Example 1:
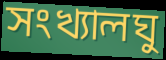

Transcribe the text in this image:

সংখ্যালঘু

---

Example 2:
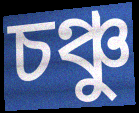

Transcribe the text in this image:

চঞ্চু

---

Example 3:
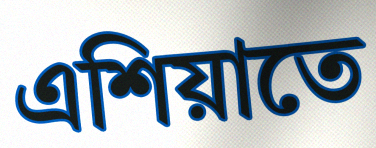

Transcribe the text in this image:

এশিয়াতে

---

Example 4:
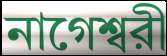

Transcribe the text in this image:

নাগেশ্বরী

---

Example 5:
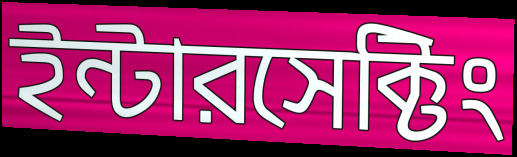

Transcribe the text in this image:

ইন্টারসেক্টিং